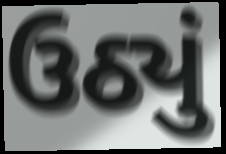
ઉઠ્યું